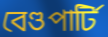
বেণ্ডপাৰ্টি